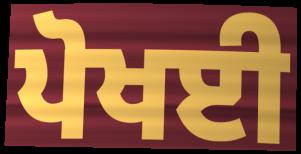
ਪੋਖਈ